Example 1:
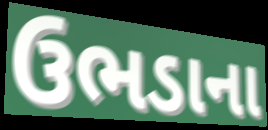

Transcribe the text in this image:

ઉભડાના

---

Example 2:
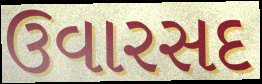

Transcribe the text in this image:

ઉવારસદ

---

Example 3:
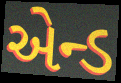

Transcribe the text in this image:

એન્ડ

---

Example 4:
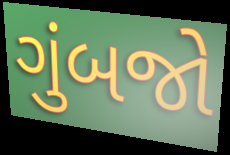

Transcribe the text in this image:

ગુંબજો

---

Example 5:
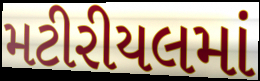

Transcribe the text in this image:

મટીરીયલમાં